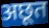
अछूत